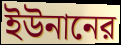
ইউনানের